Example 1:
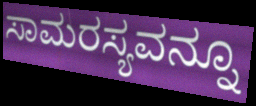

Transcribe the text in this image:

ಸಾಮರಸ್ಯವನ್ನೂ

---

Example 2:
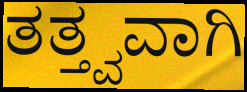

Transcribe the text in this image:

ತತ್ತ್ವವಾಗಿ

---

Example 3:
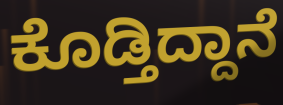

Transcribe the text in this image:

ಕೊಡ್ತಿದ್ದಾನೆ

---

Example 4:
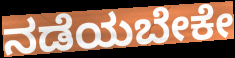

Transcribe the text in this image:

ನಡೆಯಬೇಕೇ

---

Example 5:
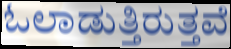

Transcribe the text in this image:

ಓಲಾಡುತ್ತಿರುತ್ತವೆ